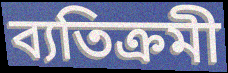
ব্যতিক্ৰমী